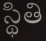
స్థితి